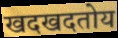
खदखदतोय